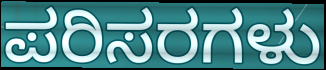
ಪರಿಸರಗಳು